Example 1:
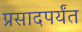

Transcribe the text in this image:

प्रसादपर्यंत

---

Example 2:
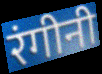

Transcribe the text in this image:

रंगीनी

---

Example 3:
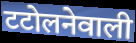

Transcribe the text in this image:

टटोलनेवाली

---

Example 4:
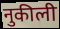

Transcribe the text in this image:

नुकीली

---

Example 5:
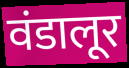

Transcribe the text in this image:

वंडालूर